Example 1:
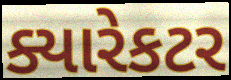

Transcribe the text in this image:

ક્યારેકટર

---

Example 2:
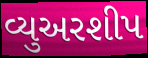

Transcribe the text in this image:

વ્યુઅરશીપ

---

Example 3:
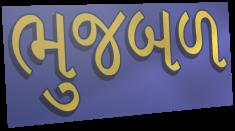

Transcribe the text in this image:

ભુજબળ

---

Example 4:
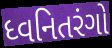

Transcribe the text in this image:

ધ્વનિતરંગો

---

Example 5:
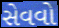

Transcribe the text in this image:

સેવવો